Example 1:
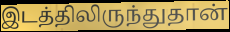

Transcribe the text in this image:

இடத்திலிருந்துதான்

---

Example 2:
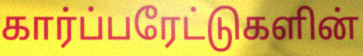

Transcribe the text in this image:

கார்ப்பரேட்டுகளின்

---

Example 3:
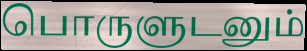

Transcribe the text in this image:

பொருளுடனும்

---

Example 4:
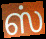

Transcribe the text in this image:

ஸ்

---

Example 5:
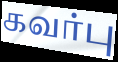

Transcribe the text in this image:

கவர்பு